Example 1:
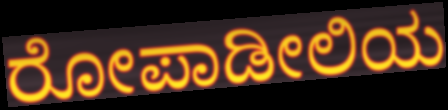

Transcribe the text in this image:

ರೋಪಾಡೀಲಿಯ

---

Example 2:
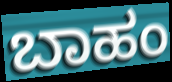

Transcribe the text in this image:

ಬಾಹಂ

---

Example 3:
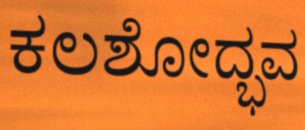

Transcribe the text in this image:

ಕಲಶೋದ್ಭವ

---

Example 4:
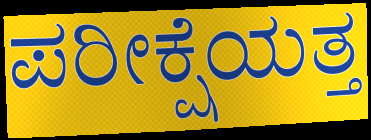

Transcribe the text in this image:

ಪರೀಕ್ಷೆಯತ್ತ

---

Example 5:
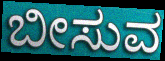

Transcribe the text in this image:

ಬೀಸುವ